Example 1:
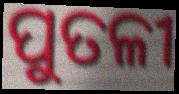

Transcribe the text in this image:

ପୁତଳୀ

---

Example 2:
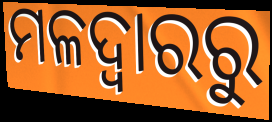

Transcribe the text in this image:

ମଳଦ୍ୱାରରୁ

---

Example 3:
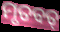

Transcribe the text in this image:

ମୃତବତ୍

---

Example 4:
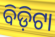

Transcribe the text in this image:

ବିଡ଼ିଟା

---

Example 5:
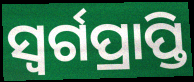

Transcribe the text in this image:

ସ୍ୱର୍ଗପ୍ରାପ୍ତି